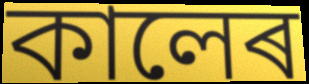
কালেৰ